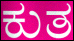
ಕುತ